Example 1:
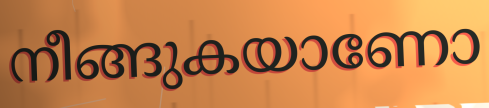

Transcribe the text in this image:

നീങ്ങുകയാണോ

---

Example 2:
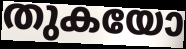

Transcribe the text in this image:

തുകയോ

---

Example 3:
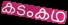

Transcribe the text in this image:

കടംകഥ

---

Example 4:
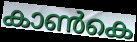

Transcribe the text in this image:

കാൺകെ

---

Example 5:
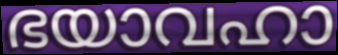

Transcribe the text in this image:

ഭയാവഹാ